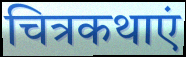
चित्रकथाएं